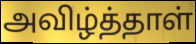
அவிழ்த்தாள்